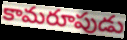
కామరూపుడు